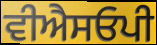
ਵੀਐਸਓਪੀ